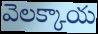
వెలక్కాయ